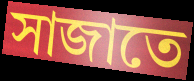
সাজাতে